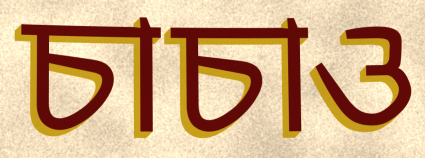
চাচাও